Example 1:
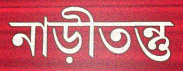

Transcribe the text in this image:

নাড়ীতন্তু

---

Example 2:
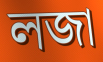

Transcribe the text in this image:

লজা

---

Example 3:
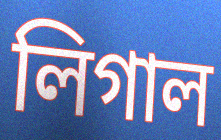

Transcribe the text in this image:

লিগাল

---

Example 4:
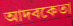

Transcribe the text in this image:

আদবকেতা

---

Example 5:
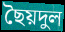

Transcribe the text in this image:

ছৈয়দুল